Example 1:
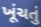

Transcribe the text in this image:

ખૂંચતું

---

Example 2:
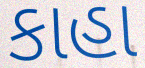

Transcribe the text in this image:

કાહા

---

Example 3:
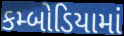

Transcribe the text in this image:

કમ્બોડિયામાં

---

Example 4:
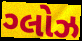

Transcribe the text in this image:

ગ્લોઝ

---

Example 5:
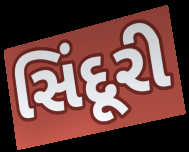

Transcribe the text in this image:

સિંદૂરી